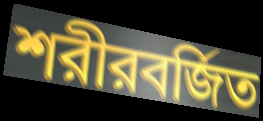
শরীরবর্জিত